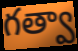
గత్వా